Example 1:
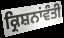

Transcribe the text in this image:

ਕ੍ਰਿਸ਼ਨਾਂਵੰਤੀ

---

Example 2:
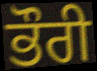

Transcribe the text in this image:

ਭੌਰੀ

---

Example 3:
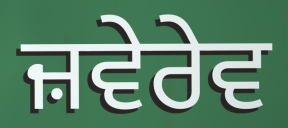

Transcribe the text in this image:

ਜ਼ਵੇਰੇਵ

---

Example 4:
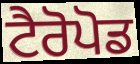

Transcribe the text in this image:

ਟੈਰੋਪੋਡ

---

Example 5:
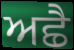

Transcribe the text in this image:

ਅਛੈ